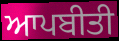
ਆਪਬੀਤੀ